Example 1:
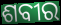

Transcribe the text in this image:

ଶବୀର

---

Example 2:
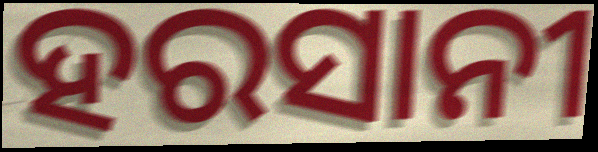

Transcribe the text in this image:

ହରସାନୀ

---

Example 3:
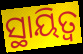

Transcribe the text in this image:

ସ୍ଥାୟିତ୍ୱ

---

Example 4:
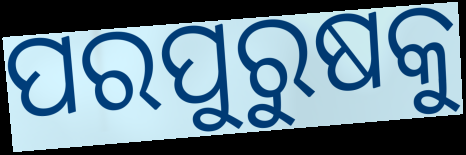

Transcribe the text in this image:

ପରପୁରୁଷକୁ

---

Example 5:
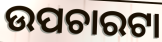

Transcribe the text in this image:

ଉପଚାରଟା